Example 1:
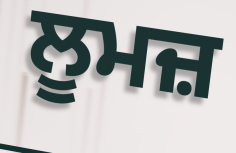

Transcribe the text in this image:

ਲੂਮਜ਼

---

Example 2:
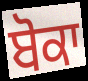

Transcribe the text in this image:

ਬੋਕਾ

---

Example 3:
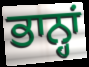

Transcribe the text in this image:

ਭਾਨ੍ਹਾਂ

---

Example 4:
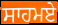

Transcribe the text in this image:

ਸਾਹਮਏ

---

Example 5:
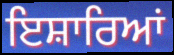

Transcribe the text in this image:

ਇਸ਼ਾਰਿਆਂ